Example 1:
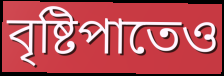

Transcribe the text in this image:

বৃষ্টিপাতেও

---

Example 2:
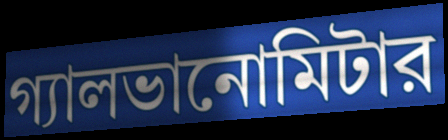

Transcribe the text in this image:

গ্যালভানোমিটার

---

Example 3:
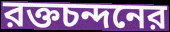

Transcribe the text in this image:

রক্তচন্দনের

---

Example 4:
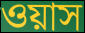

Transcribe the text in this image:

ওয়াস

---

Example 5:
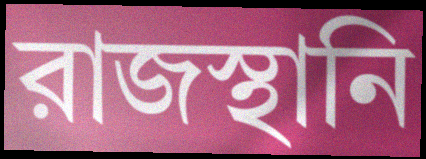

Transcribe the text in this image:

রাজস্থানি